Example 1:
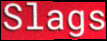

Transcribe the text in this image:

Slags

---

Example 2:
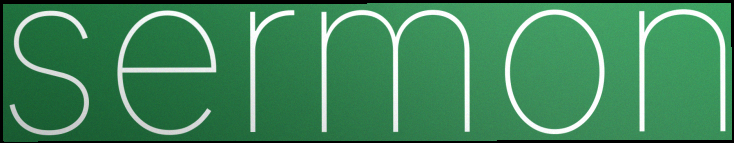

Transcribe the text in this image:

sermon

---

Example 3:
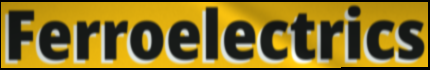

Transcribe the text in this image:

Ferroelectrics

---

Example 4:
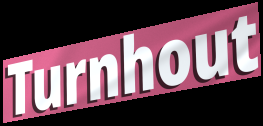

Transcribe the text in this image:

Turnhout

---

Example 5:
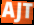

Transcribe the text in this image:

AJT